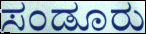
ಸಂಡೂರು